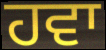
ਹਵਾ